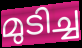
മുടിച്ച